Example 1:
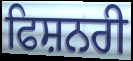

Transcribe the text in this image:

ਫਿਸ਼ਨਰੀ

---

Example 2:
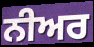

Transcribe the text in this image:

ਨੀਅਰ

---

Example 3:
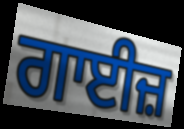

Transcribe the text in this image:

ਗਾਈਜ਼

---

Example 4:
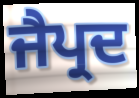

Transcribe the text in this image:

ਜੈਪ੍ਰਦ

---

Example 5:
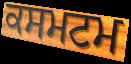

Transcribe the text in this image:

ਕਸਮਟਮ